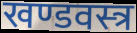
खण्डवस्त्र